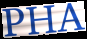
PHA